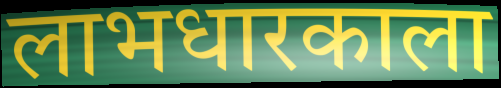
लाभधारकाला